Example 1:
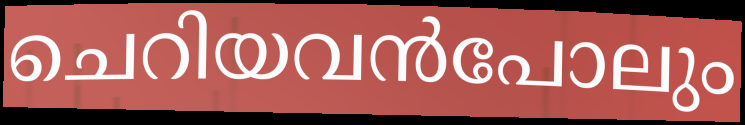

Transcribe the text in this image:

ചെറിയവൻപോലും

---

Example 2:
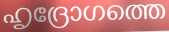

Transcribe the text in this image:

ഹൃദ്രോഗത്തെ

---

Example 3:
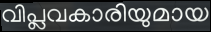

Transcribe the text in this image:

വിപ്ലവകാരിയുമായ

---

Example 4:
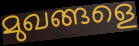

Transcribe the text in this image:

മുഖങ്ങളെ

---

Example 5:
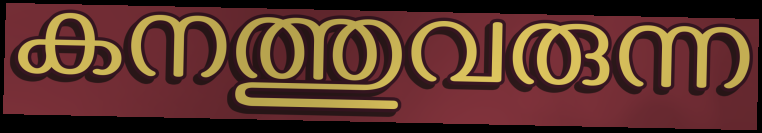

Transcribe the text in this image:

കനത്തുവരുന്ന